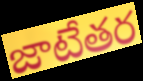
జాటేతర